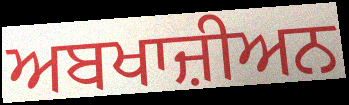
ਅਬਖਾਜ਼ੀਅਨ